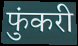
फुंकरी